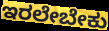
ಇರಲೇಬೇಕು